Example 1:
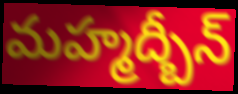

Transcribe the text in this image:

మహ్మద్బీన్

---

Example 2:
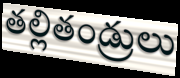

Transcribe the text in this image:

తల్లితండ్రులు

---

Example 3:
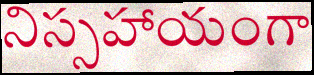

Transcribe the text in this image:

నిస్సహాయంగా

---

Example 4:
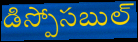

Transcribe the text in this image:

డిస్పోసబుల్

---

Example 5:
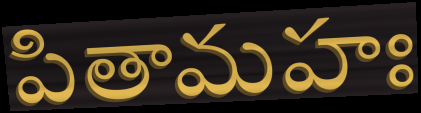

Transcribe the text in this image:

పితామహః